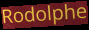
Rodolphe